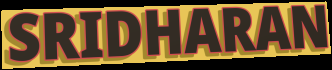
SRIDHARAN